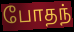
போதந்